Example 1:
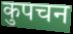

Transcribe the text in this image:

कुपचन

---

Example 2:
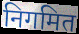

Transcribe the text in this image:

निगमित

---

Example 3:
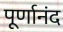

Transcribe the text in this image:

पूर्णानंद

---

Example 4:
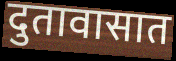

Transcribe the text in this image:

दुतावासात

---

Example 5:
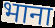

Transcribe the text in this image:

भाना